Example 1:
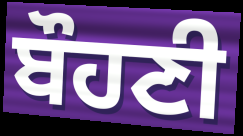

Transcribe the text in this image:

ਬੌਹਣੀ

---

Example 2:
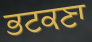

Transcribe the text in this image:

ਭਟਕਣਾ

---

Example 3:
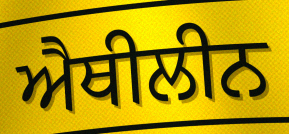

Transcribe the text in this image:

ਐਥੀਲੀਨ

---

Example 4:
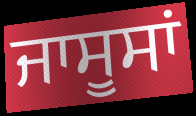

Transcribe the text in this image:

ਜਾਸੂਸਾਂ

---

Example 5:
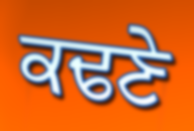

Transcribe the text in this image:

ਕਢਣੇ